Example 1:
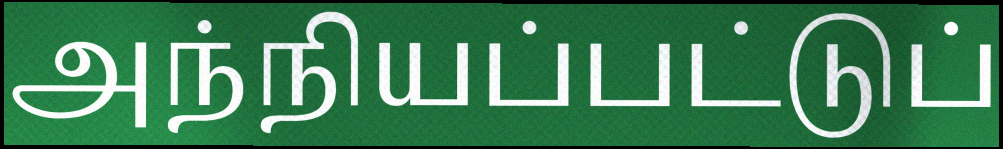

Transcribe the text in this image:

அந்நியப்பட்டுப்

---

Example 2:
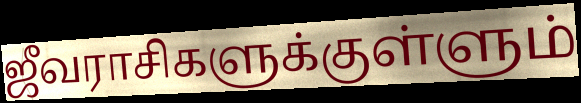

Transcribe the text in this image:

ஜீவராசிகளுக்குள்ளும்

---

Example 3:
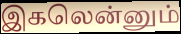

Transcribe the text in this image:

இகலென்னும்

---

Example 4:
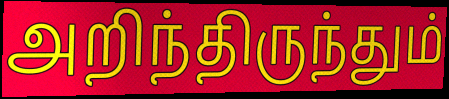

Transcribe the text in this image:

அறிந்திருந்தும்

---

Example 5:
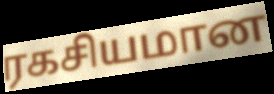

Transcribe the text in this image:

ரகசியமான